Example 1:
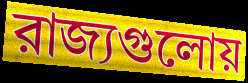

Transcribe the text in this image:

রাজ্যগুলোয়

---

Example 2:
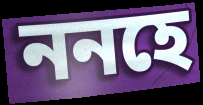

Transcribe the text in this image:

ননহে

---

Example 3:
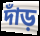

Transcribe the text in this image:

দাঁড়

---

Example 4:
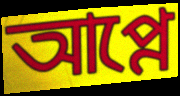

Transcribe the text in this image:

আপ্নে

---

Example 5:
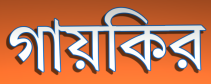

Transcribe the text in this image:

গায়কির